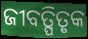
ଜୀବତ୍ପିତୃକ